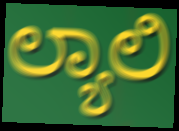
ಲ್ಯಾಲಿ